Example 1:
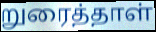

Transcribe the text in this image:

றுரைத்தாள்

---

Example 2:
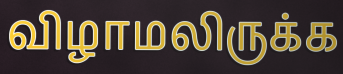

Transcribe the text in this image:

விழாமலிருக்க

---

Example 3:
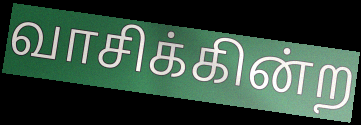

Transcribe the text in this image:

வாசிக்கின்ற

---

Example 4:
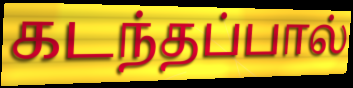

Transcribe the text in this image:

கடந்தப்பால்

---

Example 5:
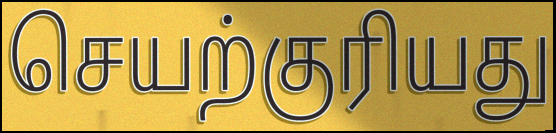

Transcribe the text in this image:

செயற்குரியது